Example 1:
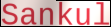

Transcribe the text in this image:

Sankul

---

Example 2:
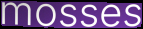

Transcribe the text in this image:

mosses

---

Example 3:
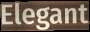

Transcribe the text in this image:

Elegant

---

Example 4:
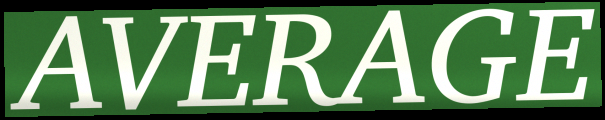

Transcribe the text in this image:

AVERAGE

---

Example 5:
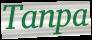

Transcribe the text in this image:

Tanpa